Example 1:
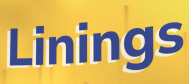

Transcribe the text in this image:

Linings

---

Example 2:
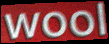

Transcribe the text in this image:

wool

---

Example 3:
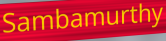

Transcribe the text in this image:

Sambamurthy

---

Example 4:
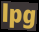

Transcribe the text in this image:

lpg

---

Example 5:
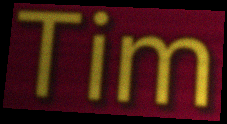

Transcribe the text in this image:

Tim